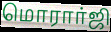
மொரார்ஜி